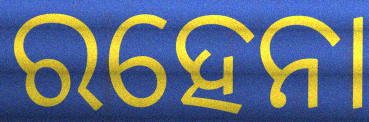
ରହେନା